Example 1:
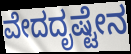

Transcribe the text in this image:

ವೇದದೃಷ್ಟೇನ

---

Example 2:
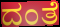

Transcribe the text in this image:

ದಂತೆ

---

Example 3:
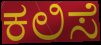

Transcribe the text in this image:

ಕಲಿಸೆ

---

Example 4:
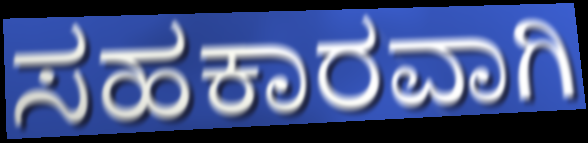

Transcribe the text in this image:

ಸಹಕಾರವಾಗಿ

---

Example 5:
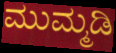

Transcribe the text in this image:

ಮುಮ್ಮಡಿ